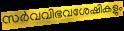
സർവവിഭവശേഷികളും